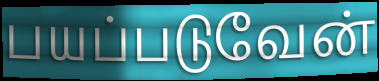
பயப்படுவேன்